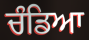
ਚੰਡਿਆ